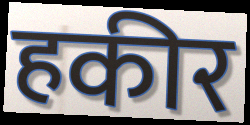
हकीर